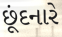
છૂંદનારે